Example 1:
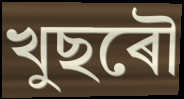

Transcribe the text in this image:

খুছৰৌ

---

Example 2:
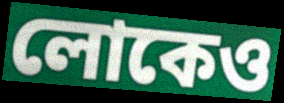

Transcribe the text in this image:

লোকেও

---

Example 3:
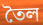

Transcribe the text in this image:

তৈল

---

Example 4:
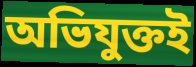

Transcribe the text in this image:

অভিযুক্তই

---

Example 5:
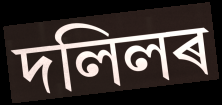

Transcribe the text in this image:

দলিলৰ